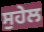
ਸੁਹੇਲ